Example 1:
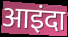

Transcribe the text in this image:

आइंदा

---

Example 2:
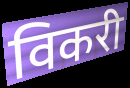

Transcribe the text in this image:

विकरी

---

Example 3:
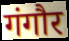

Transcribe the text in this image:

गंगौर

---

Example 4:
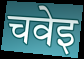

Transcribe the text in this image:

चवेइ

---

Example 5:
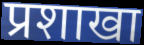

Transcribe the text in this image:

प्रशाखा